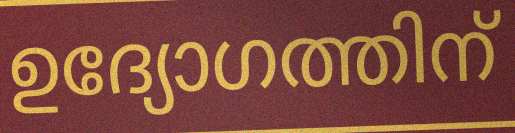
ഉദ്യോഗത്തിന്